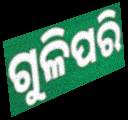
ଗୁଳିପରି